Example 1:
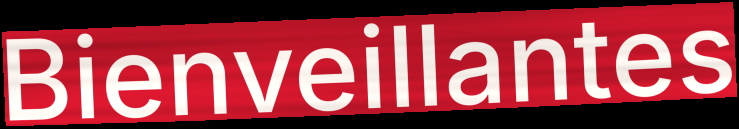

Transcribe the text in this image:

Bienveillantes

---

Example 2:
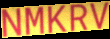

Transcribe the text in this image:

NMKRV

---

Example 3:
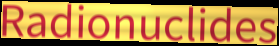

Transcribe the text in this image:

Radionuclides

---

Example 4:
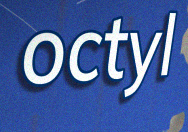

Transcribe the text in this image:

octyl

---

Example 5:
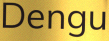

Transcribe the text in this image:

Dengu